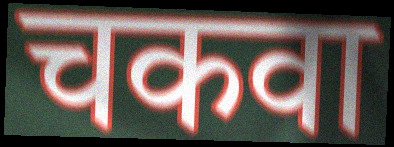
चकवा